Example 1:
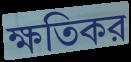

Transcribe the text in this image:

ক্ষতিকর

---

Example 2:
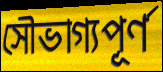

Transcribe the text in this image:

সৌভাগ্যপূর্ণ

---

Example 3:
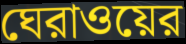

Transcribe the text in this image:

ঘেরাওয়ের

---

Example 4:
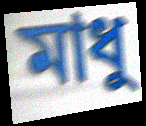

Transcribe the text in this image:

মাধু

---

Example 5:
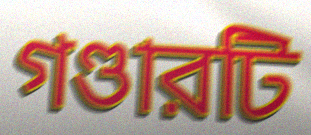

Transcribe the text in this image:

গণ্ডারটি